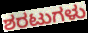
ಶರಟುಗಳು